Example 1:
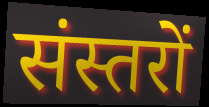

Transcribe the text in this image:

संस्तरों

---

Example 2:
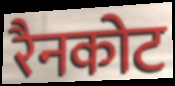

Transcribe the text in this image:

रैनकोट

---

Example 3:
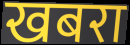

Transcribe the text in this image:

खबरा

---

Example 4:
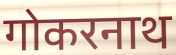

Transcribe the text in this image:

गोकरनाथ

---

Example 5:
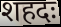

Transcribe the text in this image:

शहदः